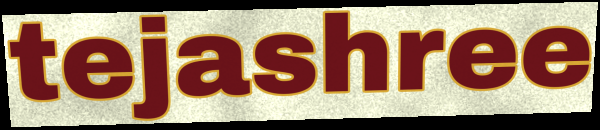
tejashree